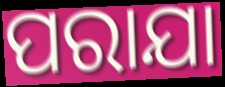
ପରାଯା